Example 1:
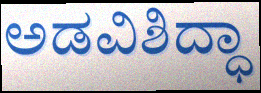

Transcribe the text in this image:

ಅಡವಿಶಿದ್ಧಾ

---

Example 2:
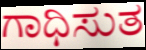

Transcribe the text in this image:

ಗಾಧಿಸುತ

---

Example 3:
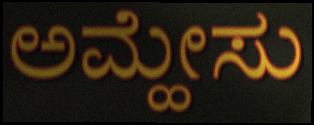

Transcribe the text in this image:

ಅಮ್ಹೇಸು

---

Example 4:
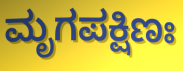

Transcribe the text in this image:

ಮೃಗಪಕ್ಷಿಣಃ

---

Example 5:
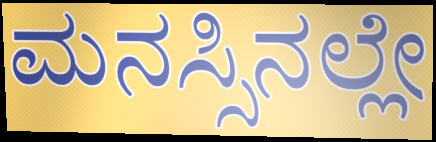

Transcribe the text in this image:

ಮನಸ್ಸಿನಲ್ಲೇ